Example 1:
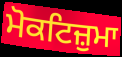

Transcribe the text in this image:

ਮੋਕਟਿਜ਼ੁਮਾ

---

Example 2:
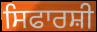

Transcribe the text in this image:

ਸਿਫਾਰਸ਼ੀ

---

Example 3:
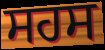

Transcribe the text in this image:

ਸਹਸ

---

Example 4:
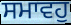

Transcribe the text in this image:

ਸਮਾਵਹੁ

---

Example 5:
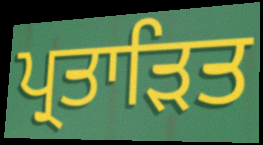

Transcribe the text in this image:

ਪ੍ਰਤਾੜਿਤ